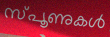
സ്പൂണുകൾ